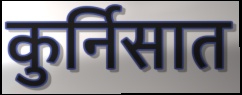
कुर्निसात